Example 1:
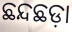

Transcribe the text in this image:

ଛନ୍ଦଛଡ଼ା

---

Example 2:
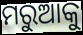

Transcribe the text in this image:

ମରୁଆକୁ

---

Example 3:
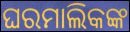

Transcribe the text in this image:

ଘରମାଲିକଙ୍କ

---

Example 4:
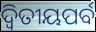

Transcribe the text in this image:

ଦ୍ୱିତୀୟପର୍ବ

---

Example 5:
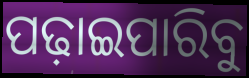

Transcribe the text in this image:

ପଢ଼ାଇପାରିବୁ